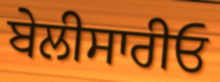
ਬੇਲੀਸਾਰੀਓ